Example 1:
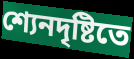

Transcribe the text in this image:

শ্যেনদৃষ্টিতে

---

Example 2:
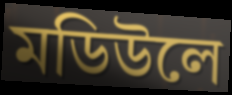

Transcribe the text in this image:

মডিউলে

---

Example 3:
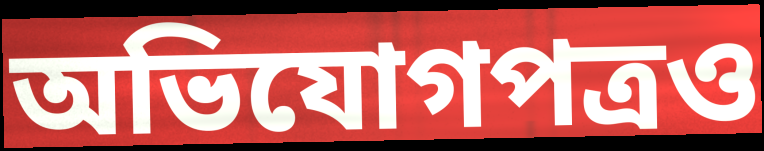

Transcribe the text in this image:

অভিযোগপত্রও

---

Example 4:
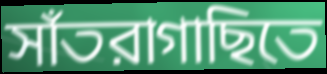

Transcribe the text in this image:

সাঁতরাগাছিতে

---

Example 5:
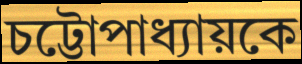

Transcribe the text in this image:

চট্টোপাধ্যায়কে